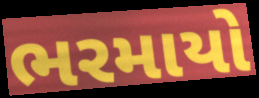
ભરમાયો